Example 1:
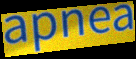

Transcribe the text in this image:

apnea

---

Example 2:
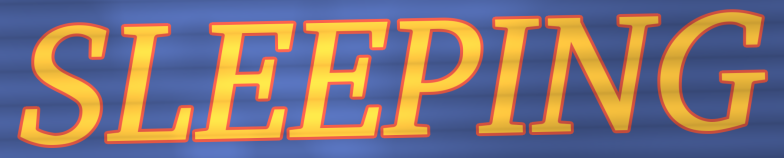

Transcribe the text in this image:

SLEEPING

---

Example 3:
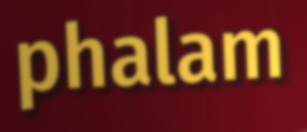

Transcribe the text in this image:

phalam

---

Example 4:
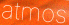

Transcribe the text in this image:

atmos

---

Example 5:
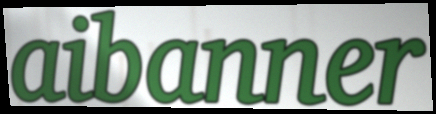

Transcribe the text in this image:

aibanner